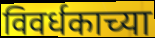
विवर्धकाच्या